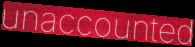
unaccounted